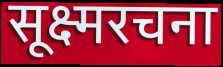
सूक्ष्मरचना